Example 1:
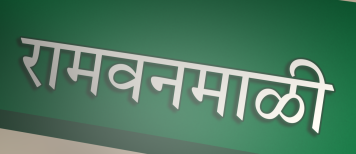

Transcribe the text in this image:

रामवनमाळी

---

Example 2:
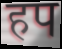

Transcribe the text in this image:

हप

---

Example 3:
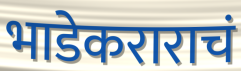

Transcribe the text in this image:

भाडेकराराचं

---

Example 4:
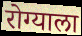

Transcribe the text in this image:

रोग्याला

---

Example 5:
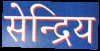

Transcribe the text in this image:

सेन्द्रिय